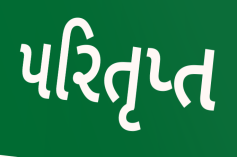
પરિતૃપ્ત